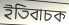
ইতিবাচক